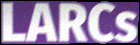
LARCs